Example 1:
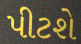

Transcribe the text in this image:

પીટશે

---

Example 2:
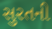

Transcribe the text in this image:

સુરતની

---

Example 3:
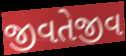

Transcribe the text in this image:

જીવતેજીવ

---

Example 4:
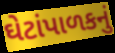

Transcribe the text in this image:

ઘેટાંપાળકનું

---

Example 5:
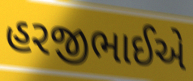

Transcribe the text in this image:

હરજીભાઈએ